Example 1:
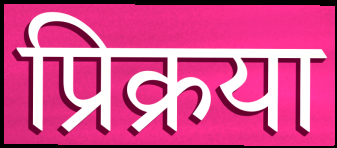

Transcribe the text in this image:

प्रिक्रया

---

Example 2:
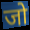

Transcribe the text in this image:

जो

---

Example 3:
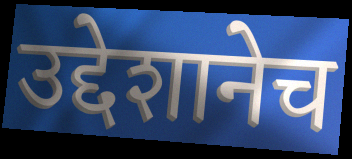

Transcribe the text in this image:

उद्देशानेच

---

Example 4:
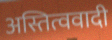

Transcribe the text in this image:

अस्तित्ववादी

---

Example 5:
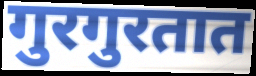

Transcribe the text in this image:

गुरगुरतात